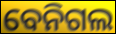
ବେନିଗଲ